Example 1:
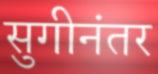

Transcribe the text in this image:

सुगीनंतर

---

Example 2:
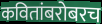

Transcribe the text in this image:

कवितांबरोबरच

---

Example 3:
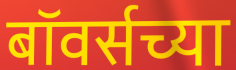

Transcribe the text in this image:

बॉवर्सच्या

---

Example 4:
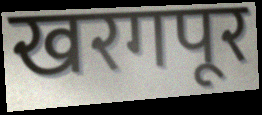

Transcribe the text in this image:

खरगपूर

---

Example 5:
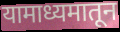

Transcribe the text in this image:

यामाध्यमातून